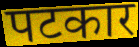
पटकार